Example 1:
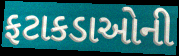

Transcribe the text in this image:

ફટાકડાઓની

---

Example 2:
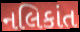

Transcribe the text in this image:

નલિકાંત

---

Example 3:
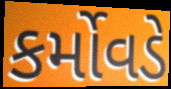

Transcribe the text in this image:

કર્મોવડે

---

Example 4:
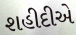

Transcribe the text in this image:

શહીદીએ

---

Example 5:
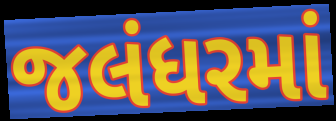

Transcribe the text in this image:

જલંધરમાં